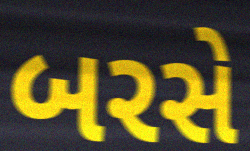
બરસે